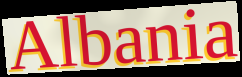
Albania